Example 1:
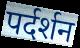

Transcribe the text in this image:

पर्दर्शन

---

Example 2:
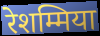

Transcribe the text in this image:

रेशम्मिया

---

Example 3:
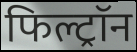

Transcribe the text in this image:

फिल्ट्रॉन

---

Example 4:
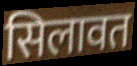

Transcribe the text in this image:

सिलावत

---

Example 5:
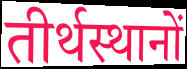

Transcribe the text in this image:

तीर्थस्थानों